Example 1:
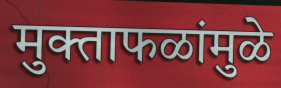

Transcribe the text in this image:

मुक्ताफळांमुळे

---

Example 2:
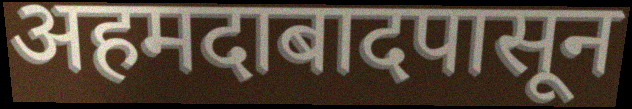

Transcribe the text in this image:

अहमदाबादपासून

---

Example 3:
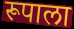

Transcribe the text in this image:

रूपाला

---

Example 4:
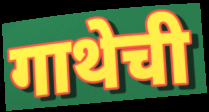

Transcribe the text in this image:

गाथेची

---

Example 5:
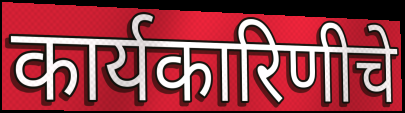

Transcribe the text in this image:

कार्यकारिणीचे